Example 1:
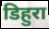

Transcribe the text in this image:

डिहुरा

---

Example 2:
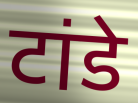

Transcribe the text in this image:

टांडे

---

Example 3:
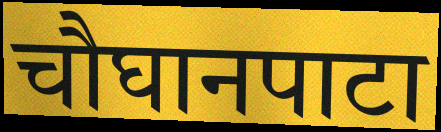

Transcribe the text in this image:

चौघानपाटा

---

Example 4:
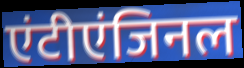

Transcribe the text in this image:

एंटीएंजिनल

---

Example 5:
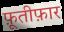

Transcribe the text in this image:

फ़ूतीफ़ार